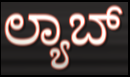
ಲ್ಯಾಬ್